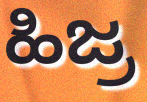
ಹಿಜ್ರ